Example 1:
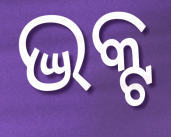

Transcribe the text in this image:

ଦ୍ଭକ୍ଟ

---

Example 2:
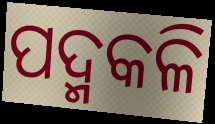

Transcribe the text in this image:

ପଦ୍ମକଳି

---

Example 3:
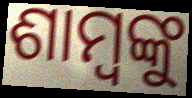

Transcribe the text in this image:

ଶାମ୍ବଙ୍କୁ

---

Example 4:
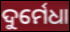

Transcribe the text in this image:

ଦୁର୍ମେଧା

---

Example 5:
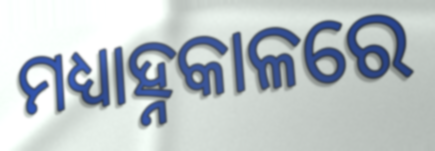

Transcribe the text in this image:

ମଧ୍ୟାହ୍ନକାଳରେ